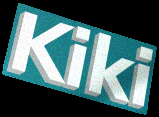
Kiki